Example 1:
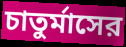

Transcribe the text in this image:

চাতুর্মাসের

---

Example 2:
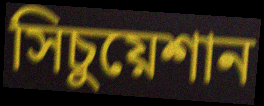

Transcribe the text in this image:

সিচুয়েশান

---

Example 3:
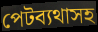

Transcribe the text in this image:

পেটব্যথাসহ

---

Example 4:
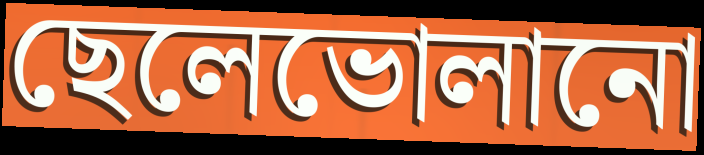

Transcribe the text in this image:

ছেলেভোলানো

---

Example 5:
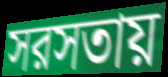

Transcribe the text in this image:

সরসতায়